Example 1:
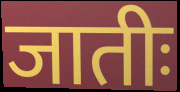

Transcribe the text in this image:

जातीः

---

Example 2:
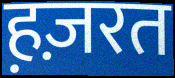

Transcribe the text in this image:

ह़ज़रत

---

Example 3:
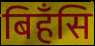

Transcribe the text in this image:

बिहँसि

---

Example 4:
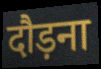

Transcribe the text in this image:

दौड़ना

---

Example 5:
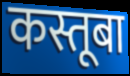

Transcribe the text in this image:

कस्तूबा